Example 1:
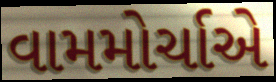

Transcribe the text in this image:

વામમોર્ચાએ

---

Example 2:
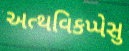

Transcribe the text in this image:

અત્થવિકપ્પેસુ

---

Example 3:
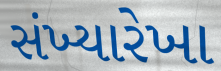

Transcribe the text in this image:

સંખ્યારેખા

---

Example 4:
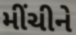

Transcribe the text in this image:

મીંચીને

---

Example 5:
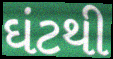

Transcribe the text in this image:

ઘંટથી